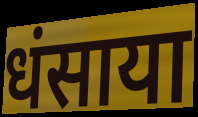
धंसाया